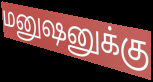
மனுஷனுக்கு